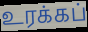
உரக்கப்